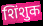
शिंशुक